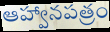
ఆహ్వానపత్రం